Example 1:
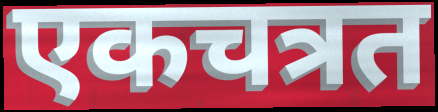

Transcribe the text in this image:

एकचत्रत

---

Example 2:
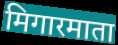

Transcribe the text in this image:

मिगारमाता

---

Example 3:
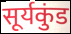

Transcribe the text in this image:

सूर्यकुंड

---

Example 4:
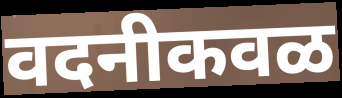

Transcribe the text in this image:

वदनीकवळ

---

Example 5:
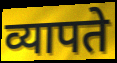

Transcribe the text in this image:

व्यापते